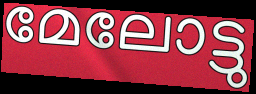
മേലോട്ടു